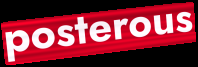
posterous